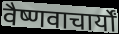
वैष्णवाचार्यों